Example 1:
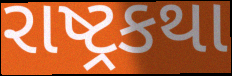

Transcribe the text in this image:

રાષ્ટ્રકથા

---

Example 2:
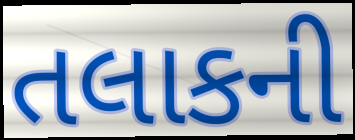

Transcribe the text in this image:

તલાકની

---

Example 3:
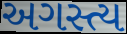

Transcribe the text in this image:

અગસ્ત્ય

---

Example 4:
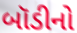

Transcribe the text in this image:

બૉડીનો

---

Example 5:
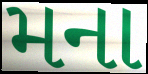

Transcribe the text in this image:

મના